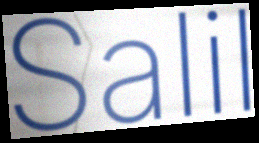
Salil